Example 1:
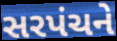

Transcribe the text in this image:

સરપંચને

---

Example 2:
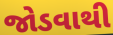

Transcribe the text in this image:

જોડવાથી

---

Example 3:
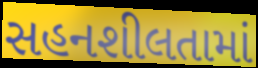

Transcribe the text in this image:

સહનશીલતામાં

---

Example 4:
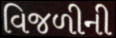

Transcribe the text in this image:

વિજળીની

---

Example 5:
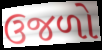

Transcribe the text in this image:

ઉજળો